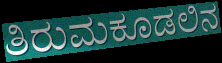
ತಿರುಮಕೂಡಲಿನ